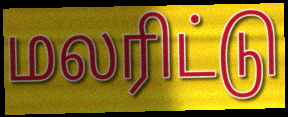
மலரிட்டு